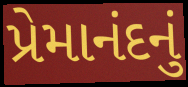
પ્રેમાનંદનું